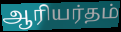
ஆரியர்தம்